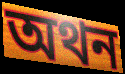
অথন